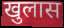
खुलास